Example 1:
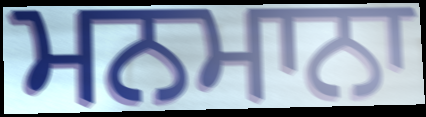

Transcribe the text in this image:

ਮਨਮਾਨਾ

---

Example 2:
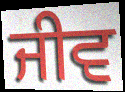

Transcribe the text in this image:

ਜੀਵ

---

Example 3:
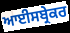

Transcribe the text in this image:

ਆਈਸਬ੍ਰੇਕਰ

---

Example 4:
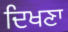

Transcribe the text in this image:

ਦਿਖਣਾ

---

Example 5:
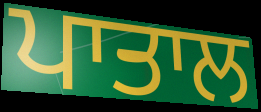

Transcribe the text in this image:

ਪਾਤਾਲ